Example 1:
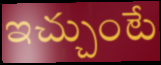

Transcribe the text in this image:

ఇచ్చుంటే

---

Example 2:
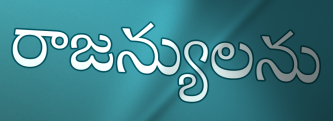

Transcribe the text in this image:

రాజన్యులను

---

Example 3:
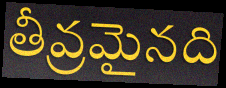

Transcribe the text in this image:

తీవ్రమైనది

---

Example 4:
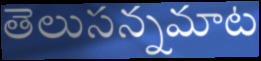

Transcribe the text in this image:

తెలుసన్నమాట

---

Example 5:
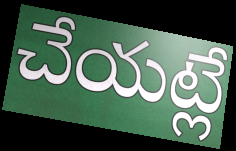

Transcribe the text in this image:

చేయట్లే